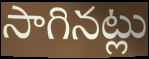
సాగినట్లు